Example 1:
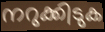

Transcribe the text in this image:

നറുക്കിടുക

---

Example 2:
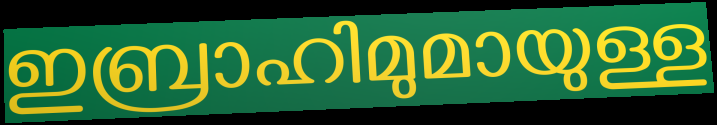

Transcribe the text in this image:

ഇബ്രാഹിമുമായുള്ള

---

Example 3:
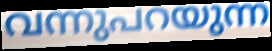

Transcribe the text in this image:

വന്നുപറയുന്ന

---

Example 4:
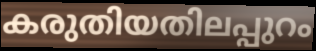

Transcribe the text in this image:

കരുതിയതിലപ്പുറം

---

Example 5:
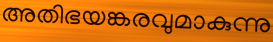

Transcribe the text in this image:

അതിഭയങ്കരവുമാകുന്നു